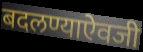
बदलण्याऐवजी